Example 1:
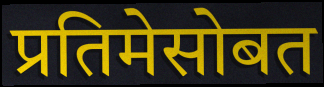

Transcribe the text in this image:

प्रतिमेसोबत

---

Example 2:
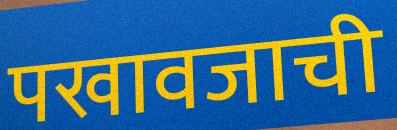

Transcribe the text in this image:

पखावजाची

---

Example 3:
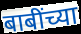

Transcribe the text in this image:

बाबींच्या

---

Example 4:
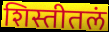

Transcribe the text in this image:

शिस्तीतलं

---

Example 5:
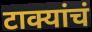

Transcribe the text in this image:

टाक्यांचं